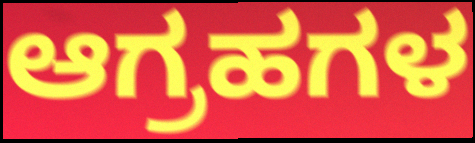
ಆಗ್ರಹಗಳ